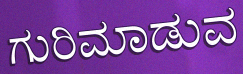
ಗುರಿಮಾಡುವ